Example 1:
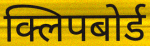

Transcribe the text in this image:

क्लिपबोर्ड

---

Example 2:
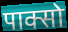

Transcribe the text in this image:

पाक्सो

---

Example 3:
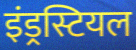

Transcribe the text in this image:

इंड्रस्टियल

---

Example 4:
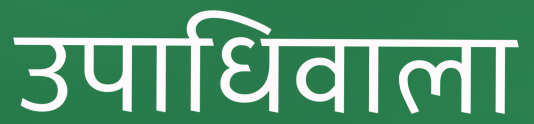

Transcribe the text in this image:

उपाधिवाला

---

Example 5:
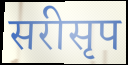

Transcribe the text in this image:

सरीसृप